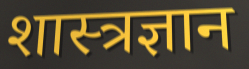
शास्त्रज्ञान